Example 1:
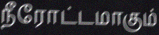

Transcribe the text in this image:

நீரோட்டமாகும்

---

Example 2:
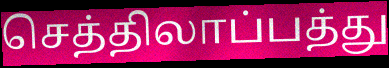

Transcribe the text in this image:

செத்திலாப்பத்து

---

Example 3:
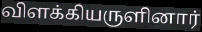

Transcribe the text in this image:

விளக்கியருளினார்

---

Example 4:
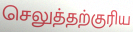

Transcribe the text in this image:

செலுத்தற்குரிய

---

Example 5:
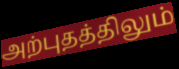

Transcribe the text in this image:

அற்புதத்திலும்